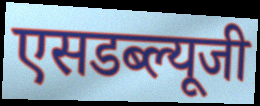
एसडब्ल्यूजी